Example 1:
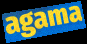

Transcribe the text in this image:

agama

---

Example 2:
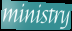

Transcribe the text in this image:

ministry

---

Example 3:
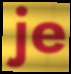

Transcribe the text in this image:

je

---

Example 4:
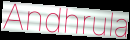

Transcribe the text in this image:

Andhrula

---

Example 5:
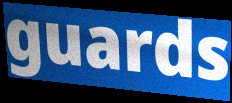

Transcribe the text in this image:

guards